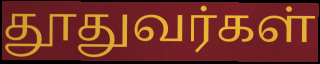
தூதுவர்கள்